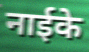
नाईके